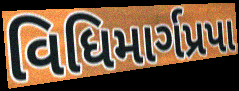
વિધિમાર્ગપ્રપા